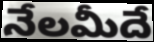
నేలమీదే